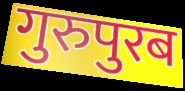
गुरुपुरब